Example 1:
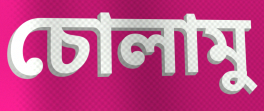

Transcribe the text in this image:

চোলামু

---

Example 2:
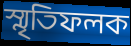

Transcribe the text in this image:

স্মৃতিফলক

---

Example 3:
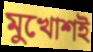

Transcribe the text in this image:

মুখোশই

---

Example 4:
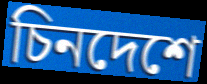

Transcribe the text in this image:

চিনদেশে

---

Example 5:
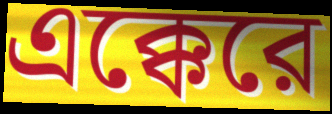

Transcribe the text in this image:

এক্কেরে